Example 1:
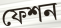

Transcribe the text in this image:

ফেশন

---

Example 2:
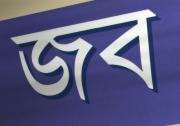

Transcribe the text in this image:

জব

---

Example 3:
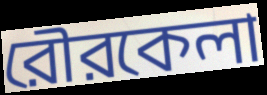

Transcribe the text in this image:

রৌরকেলা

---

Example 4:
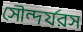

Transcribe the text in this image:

সৌন্দর্যরস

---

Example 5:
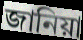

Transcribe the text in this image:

জানিয়া